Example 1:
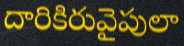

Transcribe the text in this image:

దారికిరువైపులా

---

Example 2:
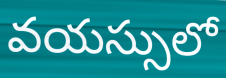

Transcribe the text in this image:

వయస్సులో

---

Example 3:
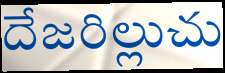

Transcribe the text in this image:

దేజరిల్లుచు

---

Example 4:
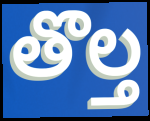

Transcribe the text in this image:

తొల్త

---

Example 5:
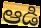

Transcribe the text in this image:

ఆడి